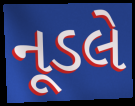
નૂડલે